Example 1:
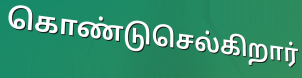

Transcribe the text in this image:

கொண்டுசெல்கிறார்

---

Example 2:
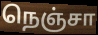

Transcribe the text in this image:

நெஞ்சா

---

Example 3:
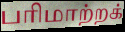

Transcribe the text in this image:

பரிமாற்றக்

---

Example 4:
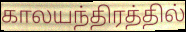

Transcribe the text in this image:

காலயந்திரத்தில்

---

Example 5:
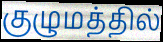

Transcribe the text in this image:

குழுமத்தில்